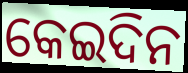
କେଇଦିନ